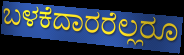
ಬಳಕೆದಾರರೆಲ್ಲರೂ